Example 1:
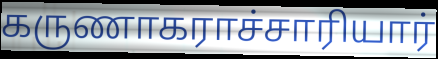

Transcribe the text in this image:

கருணாகராச்சாரியார்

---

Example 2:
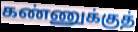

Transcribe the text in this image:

கண்ணுக்குத்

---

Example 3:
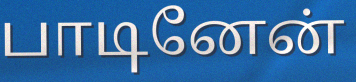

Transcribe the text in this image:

பாடினேன்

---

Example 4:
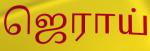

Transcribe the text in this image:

ஜெராய்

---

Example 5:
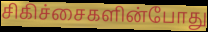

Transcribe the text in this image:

சிகிச்சைகளின்போது